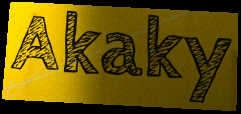
Akaky